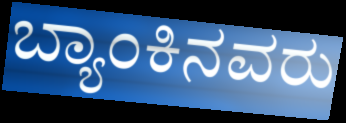
ಬ್ಯಾಂಕಿನವರು